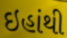
ઇહાંથી